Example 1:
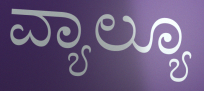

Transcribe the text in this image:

ವ್ಯಾಲ್ಯೂ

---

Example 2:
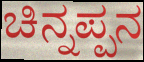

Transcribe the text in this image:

ಚಿನ್ನಪ್ಪನ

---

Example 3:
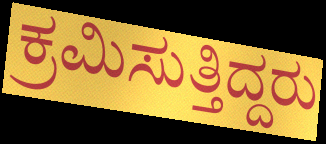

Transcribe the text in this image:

ಕ್ರಮಿಸುತ್ತಿದ್ದರು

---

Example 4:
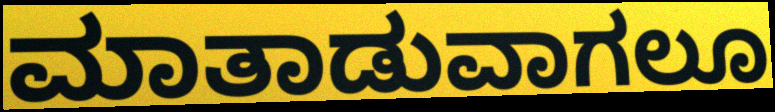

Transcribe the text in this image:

ಮಾತಾಡುವಾಗಲೂ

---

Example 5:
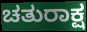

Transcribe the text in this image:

ಚತುರಾಕ್ಷ